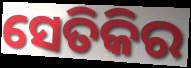
ସେତିକିର